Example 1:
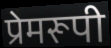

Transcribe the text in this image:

प्रेमरूपी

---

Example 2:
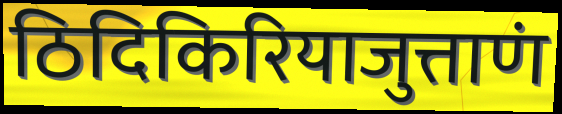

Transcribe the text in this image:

ठिदिकिरियाजुत्ताणं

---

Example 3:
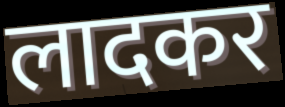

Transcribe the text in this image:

लादकर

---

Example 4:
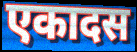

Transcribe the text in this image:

एकादस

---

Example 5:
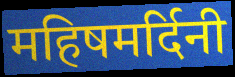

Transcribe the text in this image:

महिषमर्दिनी